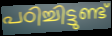
പഠിച്ചിട്ടുണ്ട്